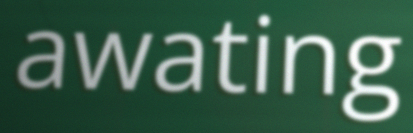
awating